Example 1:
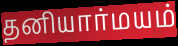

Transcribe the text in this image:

தனியார்மயம்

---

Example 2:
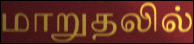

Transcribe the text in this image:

மாறுதலில்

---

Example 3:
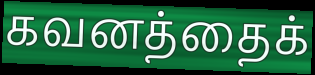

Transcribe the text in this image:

கவனத்தைக்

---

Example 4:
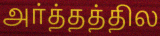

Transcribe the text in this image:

அர்த்தத்தில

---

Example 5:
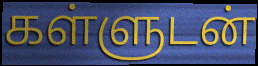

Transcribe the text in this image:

கள்ளுடன்